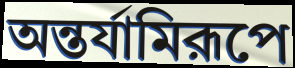
অন্তর্যামিরূপে